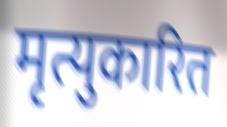
मृत्युकारित